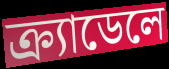
ক্র্যাডেলে